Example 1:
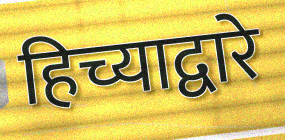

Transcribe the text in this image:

हिच्याद्वारे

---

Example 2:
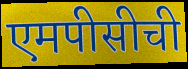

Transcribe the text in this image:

एमपीसीची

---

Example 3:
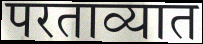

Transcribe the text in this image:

परताव्यात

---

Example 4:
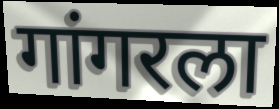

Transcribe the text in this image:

गांगरला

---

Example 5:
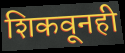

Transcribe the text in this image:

शिकवूनही